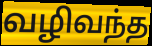
வழிவந்த